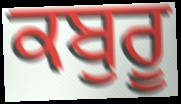
ਕਬੁਰੂ